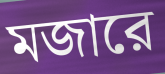
মজারে